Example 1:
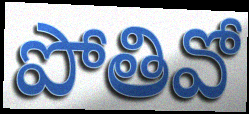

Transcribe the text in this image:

పోతివో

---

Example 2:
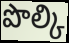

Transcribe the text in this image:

పొల్కి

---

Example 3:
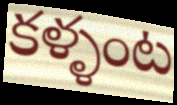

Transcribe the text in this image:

కళ్ళంట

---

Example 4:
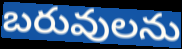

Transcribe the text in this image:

బరువులను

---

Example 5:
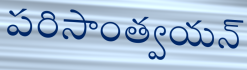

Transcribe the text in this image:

పరిసాంత్వయన్